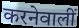
करनेवालीं